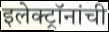
इलेक्ट्रॉनांची